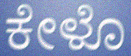
ಕೇಳೊ